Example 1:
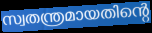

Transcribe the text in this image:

സ്വതന്ത്രമായതിന്റെ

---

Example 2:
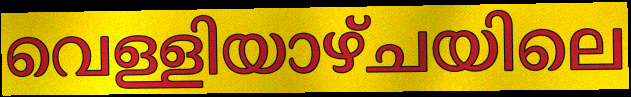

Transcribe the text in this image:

വെള്ളിയാഴ്ചയിലെ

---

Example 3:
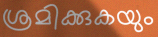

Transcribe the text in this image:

ശ്രമിക്കുകയും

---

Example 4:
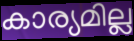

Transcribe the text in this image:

കാര്യമില്ല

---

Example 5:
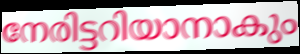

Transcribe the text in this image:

നേരിട്ടറിയാനാകും